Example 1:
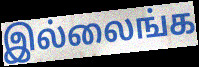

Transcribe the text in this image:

இல்லைங்க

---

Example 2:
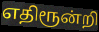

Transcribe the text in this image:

எதிரூன்றி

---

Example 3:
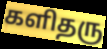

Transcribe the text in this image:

களிதரு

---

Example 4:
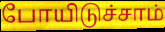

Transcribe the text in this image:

போயிடுச்சாம்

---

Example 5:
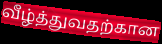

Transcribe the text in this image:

வீழ்த்துவதற்கான